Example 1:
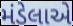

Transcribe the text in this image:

મંડેલાએ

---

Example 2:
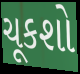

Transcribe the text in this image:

ચૂકશો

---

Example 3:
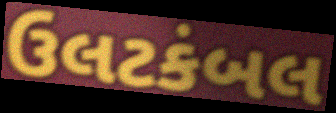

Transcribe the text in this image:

ઉલટકંબલ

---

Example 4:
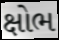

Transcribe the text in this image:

ક્ષોભ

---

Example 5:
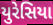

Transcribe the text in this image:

યુરેસિયા